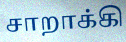
சாறாக்கி